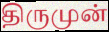
திருமுன்